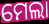
ମେଲା